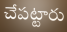
చేపట్టారు